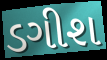
ડગીશ